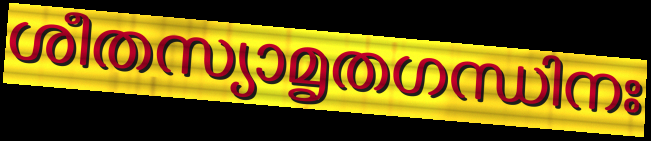
ശീതസ്യാമൃതഗന്ധിനഃ